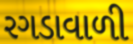
રગડાવાળી